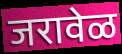
जरावेळ